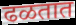
ढळतात